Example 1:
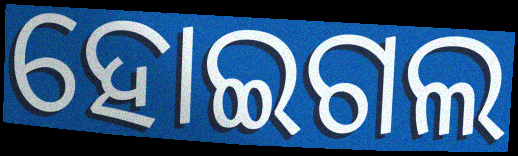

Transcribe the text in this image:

ହୋଇଗଲ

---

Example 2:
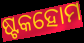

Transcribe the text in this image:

ଷ୍ଟକହୋମ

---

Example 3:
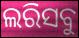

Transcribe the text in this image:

ଲରିସବୁ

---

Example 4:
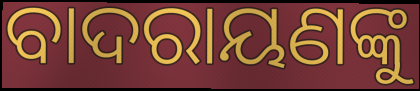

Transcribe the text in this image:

ବାଦରାୟଣଙ୍କୁ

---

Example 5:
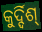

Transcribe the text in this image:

କୁର୍ଦ୍ଦିଶ୍